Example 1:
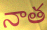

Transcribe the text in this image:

నాత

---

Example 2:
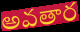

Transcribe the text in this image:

అవతార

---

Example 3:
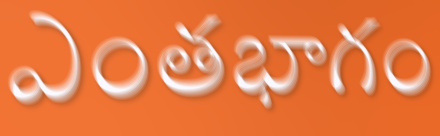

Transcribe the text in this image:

ఎంతభాగం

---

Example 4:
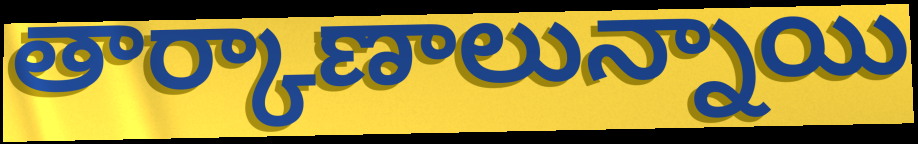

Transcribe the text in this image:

తార్కాణాలున్నాయి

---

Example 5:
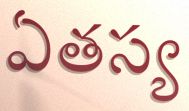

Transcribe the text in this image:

ఏతస్య